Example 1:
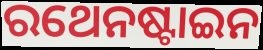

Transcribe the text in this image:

ରଥେନଷ୍ଟାଇନ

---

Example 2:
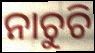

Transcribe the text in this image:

ନାଚୁଚି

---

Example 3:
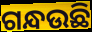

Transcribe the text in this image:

ଗନ୍ଧଉଛି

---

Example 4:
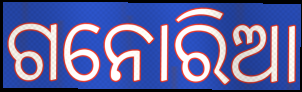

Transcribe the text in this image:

ଗନୋରିଆ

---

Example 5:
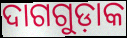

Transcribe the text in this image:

ଦାଗଗୁଡ଼ାକ